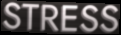
STRESS